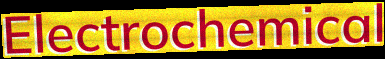
Electrochemical